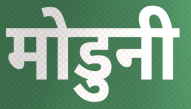
मोडुनी